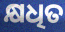
କ୍ଷଧିତ